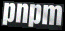
pnpm